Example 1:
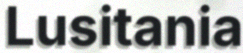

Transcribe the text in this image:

Lusitania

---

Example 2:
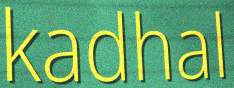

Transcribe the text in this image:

kadhal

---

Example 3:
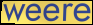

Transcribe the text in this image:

weere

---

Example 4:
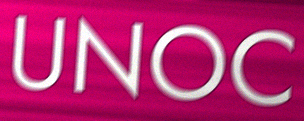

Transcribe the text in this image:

UNOC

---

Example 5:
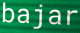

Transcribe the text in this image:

bajar